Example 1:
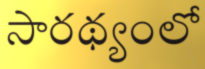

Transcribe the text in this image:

సారథ్యంలో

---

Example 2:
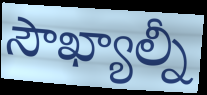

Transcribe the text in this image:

సౌఖ్యాల్నీ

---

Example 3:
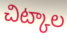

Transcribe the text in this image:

చిట్కాల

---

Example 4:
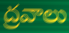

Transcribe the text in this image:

ద్రవాలు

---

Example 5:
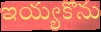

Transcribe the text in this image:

ఇయ్యకొను